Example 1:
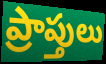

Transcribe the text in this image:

ప్రాప్తులు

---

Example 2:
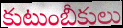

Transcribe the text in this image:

కుటుంబీకులు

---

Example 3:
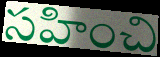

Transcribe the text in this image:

సహించి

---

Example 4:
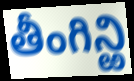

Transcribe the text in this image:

తీంగిన్ఱి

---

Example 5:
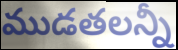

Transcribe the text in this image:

ముడతలన్నీ